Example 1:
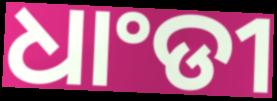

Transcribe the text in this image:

ଧାଂଡୀ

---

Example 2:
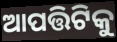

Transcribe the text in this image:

ଆପତ୍ତିଟିକୁ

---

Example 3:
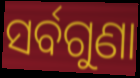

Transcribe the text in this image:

ସର୍ବଗୁଣା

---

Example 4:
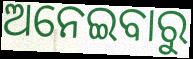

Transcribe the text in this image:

ଅନେଇବାରୁ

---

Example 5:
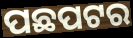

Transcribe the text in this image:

ପଛପଟର